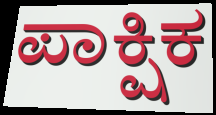
ಪಾಕ್ಷಿಕ